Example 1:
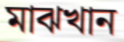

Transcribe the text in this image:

মাঝখান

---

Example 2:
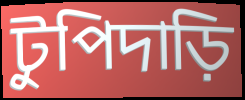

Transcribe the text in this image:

টুপিদাড়ি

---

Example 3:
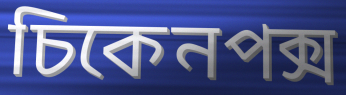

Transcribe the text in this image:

চিকেনপক্স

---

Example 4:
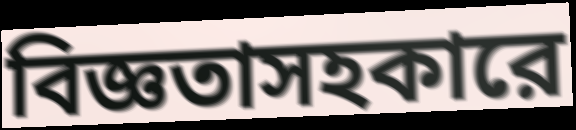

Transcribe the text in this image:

বিজ্ঞতাসহকারে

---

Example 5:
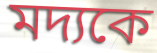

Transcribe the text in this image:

মদ্যকে